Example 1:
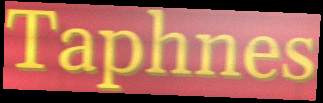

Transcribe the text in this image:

Taphnes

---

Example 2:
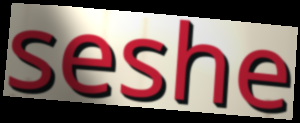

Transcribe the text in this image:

seshe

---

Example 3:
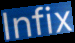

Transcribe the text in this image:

Infix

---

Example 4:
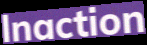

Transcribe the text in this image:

lnaction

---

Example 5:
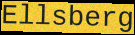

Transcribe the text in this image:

Ellsberg